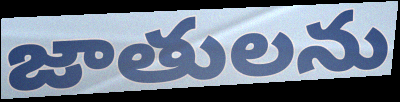
జాతులను